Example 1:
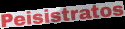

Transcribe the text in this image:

Peisistratos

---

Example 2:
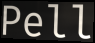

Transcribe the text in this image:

Pell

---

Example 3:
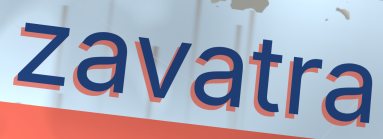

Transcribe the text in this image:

zavatra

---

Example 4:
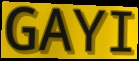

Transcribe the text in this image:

GAYI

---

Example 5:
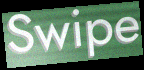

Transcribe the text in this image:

Swipe